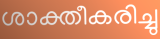
ശാക്തീകരിച്ചു